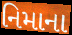
નિમાના